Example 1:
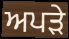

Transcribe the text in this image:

ਅਪੜੇ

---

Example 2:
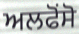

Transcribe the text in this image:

ਅਲਫੋਂਸੋ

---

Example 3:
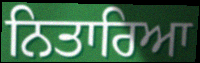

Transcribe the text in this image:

ਨਿਤਾਰਿਆ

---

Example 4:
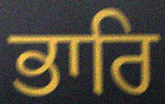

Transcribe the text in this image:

ਭਾਰਿ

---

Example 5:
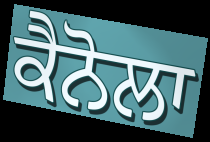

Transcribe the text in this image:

ਕੈਨੋਲਾ